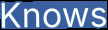
Knows